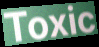
Toxic